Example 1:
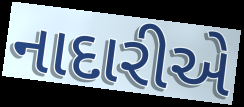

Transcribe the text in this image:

નાદારીએ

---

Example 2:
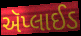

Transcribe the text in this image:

ઍપ્લાઈડ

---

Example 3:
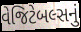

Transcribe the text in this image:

વેજિટેબલ્સનું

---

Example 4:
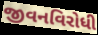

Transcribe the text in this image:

જીવનવિરોધી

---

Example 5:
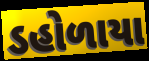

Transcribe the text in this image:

ડહોળાયા